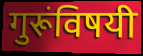
गुरूंविषयी